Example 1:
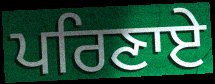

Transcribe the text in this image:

ਪਰਿਣਾਏ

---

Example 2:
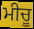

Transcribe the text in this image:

ਮੀਚੂ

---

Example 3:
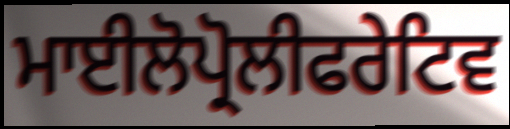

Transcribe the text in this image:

ਮਾਈਲੋਪ੍ਰੋਲੀਫਰੇਟਿਵ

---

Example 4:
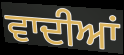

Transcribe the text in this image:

ਵਾਦੀਆਂ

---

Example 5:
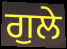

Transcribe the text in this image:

ਗੁਲੇ